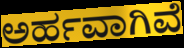
ಅರ್ಹವಾಗಿವೆ